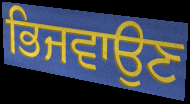
ਭਿਜਵਾਉਣ